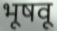
भूषवू